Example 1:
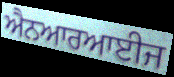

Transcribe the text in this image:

ਐਨਆਰਆਈਜ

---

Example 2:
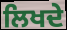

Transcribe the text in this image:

ਲਿਖਦੇ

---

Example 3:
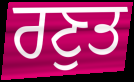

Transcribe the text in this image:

ਰਣੁਤ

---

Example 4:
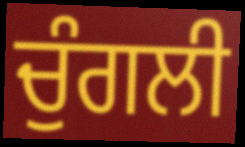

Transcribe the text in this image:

ਚੁੰਗਲੀ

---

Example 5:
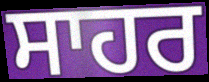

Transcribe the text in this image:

ਸਾਹਰ